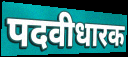
पदवीधारक